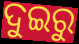
ଦୁଇରୁ